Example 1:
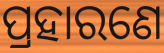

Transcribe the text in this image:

ପ୍ରହାରଣେ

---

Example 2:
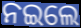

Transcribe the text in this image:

ନଇଲେ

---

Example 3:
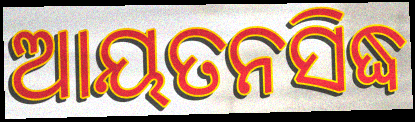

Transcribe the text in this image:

ଆୟତନସିଦ୍ଧ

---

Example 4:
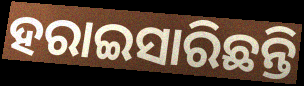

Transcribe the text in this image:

ହରାଇସାରିଛନ୍ତି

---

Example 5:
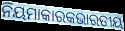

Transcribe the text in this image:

ନିୟମାକାରକଭାରତୀୟ